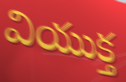
వియుక్త